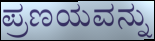
ಪ್ರಣಯವನ್ನು